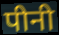
पीनी